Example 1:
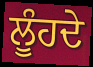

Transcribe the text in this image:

ਲੂੰਹਦੇ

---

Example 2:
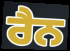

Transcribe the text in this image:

ਰੈਨ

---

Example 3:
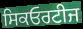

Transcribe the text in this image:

ਸਿਕਓਰਟੀਜ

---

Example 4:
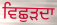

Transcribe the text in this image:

ਵਿਛੁੜਦਾ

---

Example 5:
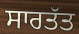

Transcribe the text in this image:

ਸਾਰਤੱਤ